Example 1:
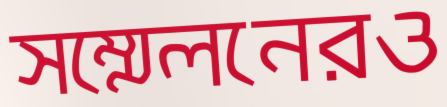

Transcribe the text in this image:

সম্মেলনেরও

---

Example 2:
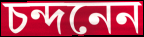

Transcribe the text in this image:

চন্দনেন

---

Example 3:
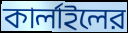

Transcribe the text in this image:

কার্লাইলের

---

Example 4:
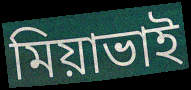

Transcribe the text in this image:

মিয়াভাই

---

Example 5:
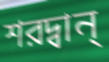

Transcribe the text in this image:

শরদ্বান্